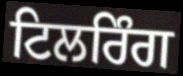
ਟਿਲਰਿੰਗ